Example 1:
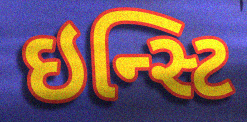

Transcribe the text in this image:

ઇન્સ્ટિ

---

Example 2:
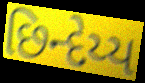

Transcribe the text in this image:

છિન્દેય્ય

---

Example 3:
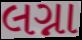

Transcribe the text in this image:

લગ્ના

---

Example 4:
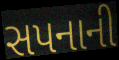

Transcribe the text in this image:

સપનાની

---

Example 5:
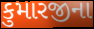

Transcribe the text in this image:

કુમારજીના